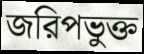
জরিপভুক্ত